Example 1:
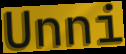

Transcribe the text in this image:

Unni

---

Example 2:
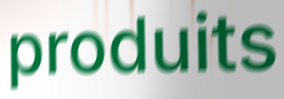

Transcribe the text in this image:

produits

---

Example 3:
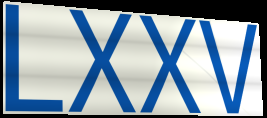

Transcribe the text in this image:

LXXV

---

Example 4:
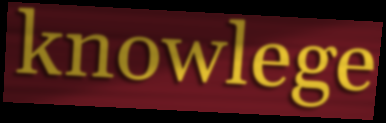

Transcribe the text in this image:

knowlege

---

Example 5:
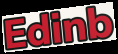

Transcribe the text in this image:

Edinb